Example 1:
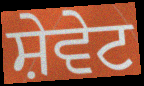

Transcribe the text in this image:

ਸ਼ੇਵੇਟ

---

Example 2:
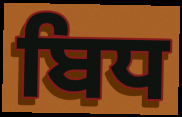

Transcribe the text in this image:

ਬਿਧ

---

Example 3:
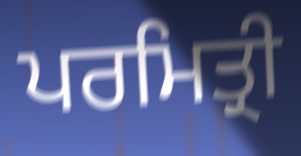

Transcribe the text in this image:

ਪਰਮਿਤ੍ਰੀ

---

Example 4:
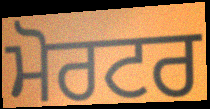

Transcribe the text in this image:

ਮੋਰਟਰ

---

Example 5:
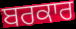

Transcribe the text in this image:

ਬਰਕਾਰ